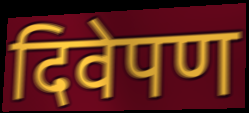
दिवेपण